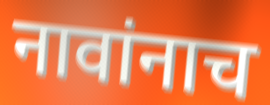
नावांनाच